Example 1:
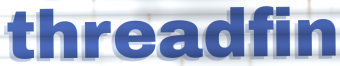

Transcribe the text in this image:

threadfin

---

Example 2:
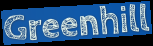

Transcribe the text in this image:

Greenhill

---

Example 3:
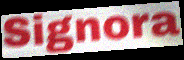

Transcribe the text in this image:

Signora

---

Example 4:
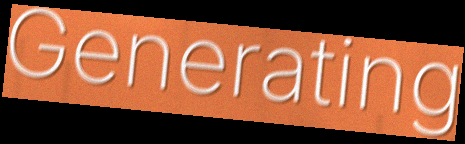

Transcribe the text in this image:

Generating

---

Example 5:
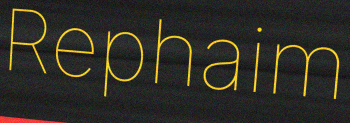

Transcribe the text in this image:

Rephaim